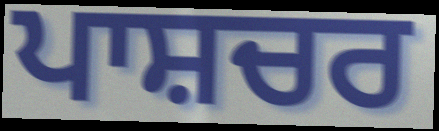
ਪਾਸ਼ਚਰ